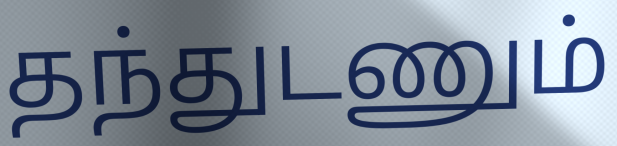
தந்துடணும்